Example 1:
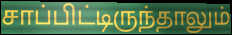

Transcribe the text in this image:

சாப்பிட்டிருந்தாலும்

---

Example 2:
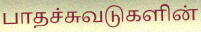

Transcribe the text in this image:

பாதச்சுவடுகளின்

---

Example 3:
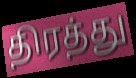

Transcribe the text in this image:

திரத்து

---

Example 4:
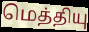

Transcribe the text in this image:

மெத்தியு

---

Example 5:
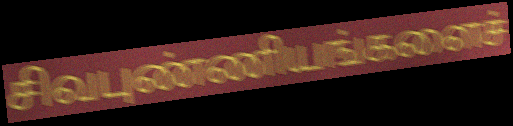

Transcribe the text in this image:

சிவபுண்ணியங்களைச்